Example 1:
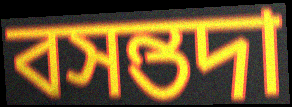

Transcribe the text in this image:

বসন্তদা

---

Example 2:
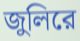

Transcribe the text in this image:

জুলিরে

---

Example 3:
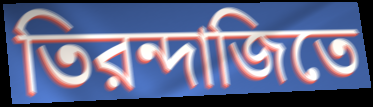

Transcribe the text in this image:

তিরন্দাজিতে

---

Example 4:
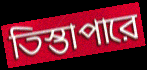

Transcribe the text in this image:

তিস্তাপারে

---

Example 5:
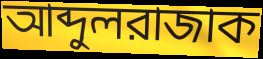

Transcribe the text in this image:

আব্দুলরাজাক